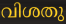
വിശതു